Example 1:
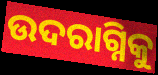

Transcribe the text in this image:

ଉଦରାଗ୍ନିକୁ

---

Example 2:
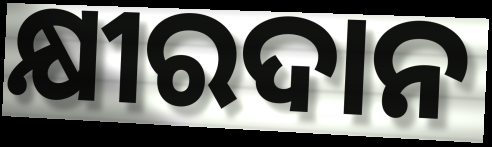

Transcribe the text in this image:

କ୍ଷୀରଦାନ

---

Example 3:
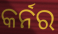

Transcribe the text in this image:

କର୍ନର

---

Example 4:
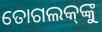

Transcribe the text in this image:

ତୋଗଲକ୍‌ଙ୍କୁ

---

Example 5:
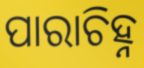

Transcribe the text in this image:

ପାରାଚିହ୍ନ